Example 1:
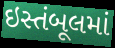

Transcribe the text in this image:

ઇસ્તંબૂલમાં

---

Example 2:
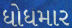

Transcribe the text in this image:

ધોધમાર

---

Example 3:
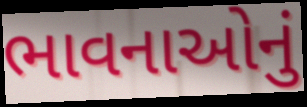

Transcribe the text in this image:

ભાવનાઓનું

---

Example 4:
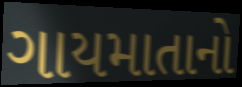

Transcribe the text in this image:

ગાયમાતાનો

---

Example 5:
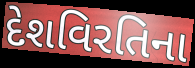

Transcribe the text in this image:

દેશવિરતિના